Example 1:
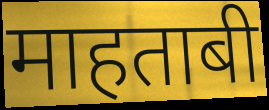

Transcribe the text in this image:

माहताबी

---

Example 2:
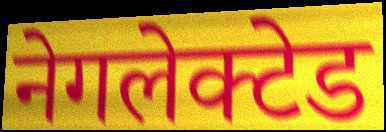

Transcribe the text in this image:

नेगलेक्टेड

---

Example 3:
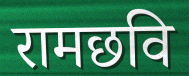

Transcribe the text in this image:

रामछवि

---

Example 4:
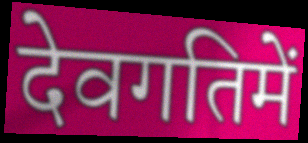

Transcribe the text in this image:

देवगतिमें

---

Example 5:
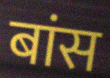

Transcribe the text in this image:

बांस